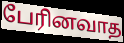
பேரினவாத